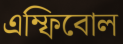
এম্ফিবোল